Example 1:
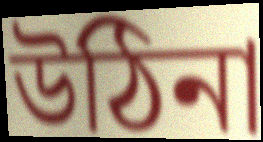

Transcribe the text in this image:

উঠিনা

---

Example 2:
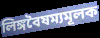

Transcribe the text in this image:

লিঙ্গবৈষম্যমূলক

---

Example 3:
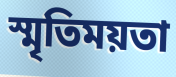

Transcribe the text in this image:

স্মৃতিময়তা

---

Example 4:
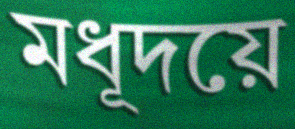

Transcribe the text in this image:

মধূদয়ে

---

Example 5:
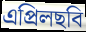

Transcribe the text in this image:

এপ্রিলছবি